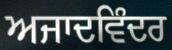
ਅਜਾਦਵਿੰਦਰ